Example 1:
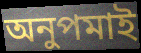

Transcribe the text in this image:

অনুপমাই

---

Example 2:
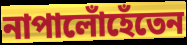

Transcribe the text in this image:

নাপালোঁহেঁতেন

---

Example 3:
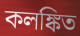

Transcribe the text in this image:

কলঙ্কিত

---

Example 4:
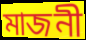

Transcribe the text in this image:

মাজনী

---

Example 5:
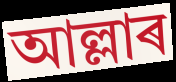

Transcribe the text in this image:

আল্লাৰ